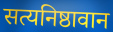
सत्यनिष्ठावान